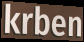
krben